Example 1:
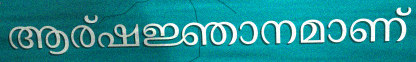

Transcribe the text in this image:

ആര്ഷജ്ഞാനമാണ്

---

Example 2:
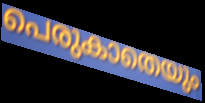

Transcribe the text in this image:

പെരുകാതെയും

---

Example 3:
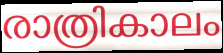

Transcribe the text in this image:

രാത്രികാലം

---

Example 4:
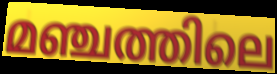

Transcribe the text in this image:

മഞ്ചത്തിലെ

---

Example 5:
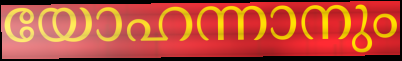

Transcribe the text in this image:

യോഹന്നാനും